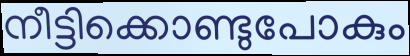
നീട്ടിക്കൊണ്ടുപോകും